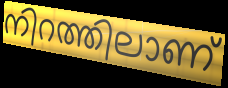
നിറത്തിലാണ്